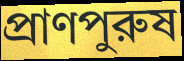
প্রাণপুরুষ